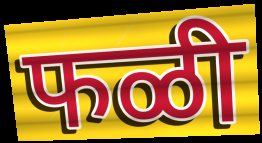
फळी